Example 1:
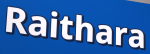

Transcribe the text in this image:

Raithara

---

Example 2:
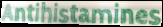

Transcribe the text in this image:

Antihistamines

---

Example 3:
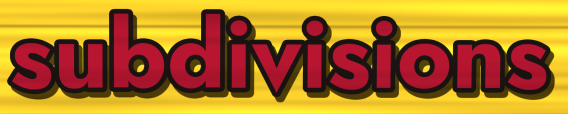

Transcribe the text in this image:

subdivisions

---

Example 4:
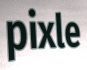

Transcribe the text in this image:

pixle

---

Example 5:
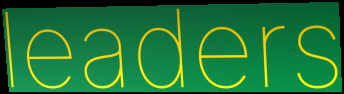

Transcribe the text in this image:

leaders